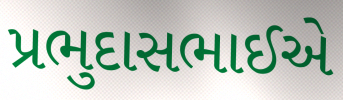
પ્રભુદાસભાઈએ